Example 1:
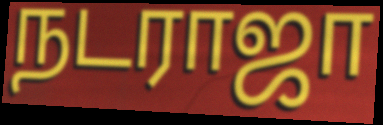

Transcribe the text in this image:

நடராஜா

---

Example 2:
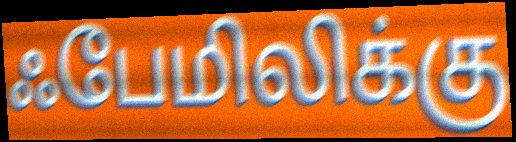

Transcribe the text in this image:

ஃபேமிலிக்கு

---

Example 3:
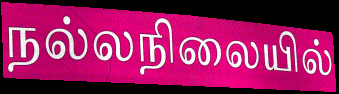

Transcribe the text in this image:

நல்லநிலையில்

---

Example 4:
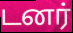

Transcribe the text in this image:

டனர்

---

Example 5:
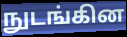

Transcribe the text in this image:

நுடங்கின